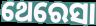
ଥେରେସା